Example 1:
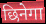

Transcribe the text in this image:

छिनेगा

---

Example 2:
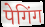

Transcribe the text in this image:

पेगिंग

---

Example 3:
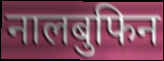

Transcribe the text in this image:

नालबुफिन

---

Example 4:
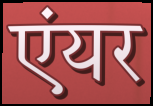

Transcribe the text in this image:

एंयर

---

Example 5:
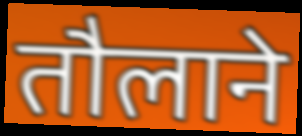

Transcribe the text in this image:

तौलाने